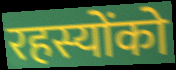
रहस्योंको